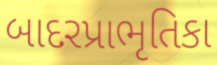
બાદરપ્રાભૃતિકા